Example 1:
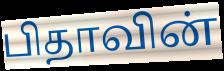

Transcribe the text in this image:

பிதாவின்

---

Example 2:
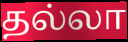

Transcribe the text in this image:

தல்லா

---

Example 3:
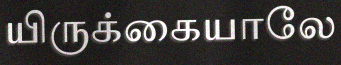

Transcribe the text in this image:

யிருக்கையாலே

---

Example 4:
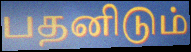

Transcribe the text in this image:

பதனிடும்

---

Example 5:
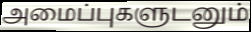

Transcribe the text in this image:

அமைப்புகளுடனும்